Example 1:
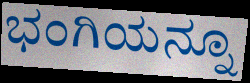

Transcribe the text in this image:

ಭಂಗಿಯನ್ನೂ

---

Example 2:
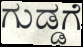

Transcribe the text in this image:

ಗುಡ್ಡಗೆ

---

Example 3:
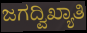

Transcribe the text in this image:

ಜಗದ್ವಿಖ್ಯಾತಿ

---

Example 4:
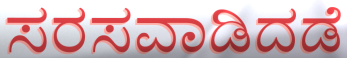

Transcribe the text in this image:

ಸರಸವಾಡಿದಡೆ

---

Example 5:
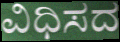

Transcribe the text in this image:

ವಿಧಿಸದ